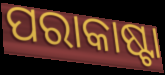
ପରାକାଷ୍ଟା